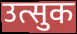
उत्सुक